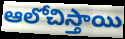
ఆలోచిస్తాయి